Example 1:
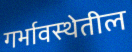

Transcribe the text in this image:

गर्भावस्थेतील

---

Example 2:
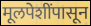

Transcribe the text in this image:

मूलपेशींपासून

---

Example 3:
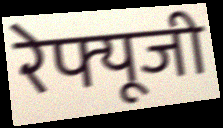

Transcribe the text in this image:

रेफ्यूजी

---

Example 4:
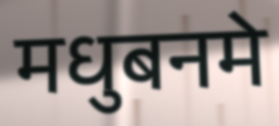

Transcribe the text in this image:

मधुबनमे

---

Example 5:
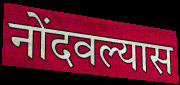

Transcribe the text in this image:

नोंदवल्यास